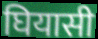
घियासी